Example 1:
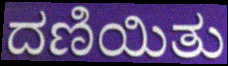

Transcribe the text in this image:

ದಣಿಯಿತು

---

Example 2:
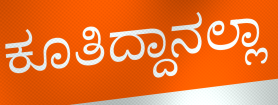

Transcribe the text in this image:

ಕೂತಿದ್ದಾನಲ್ಲಾ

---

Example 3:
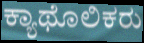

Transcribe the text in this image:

ಕ್ಯಾಥೊಲಿಕರು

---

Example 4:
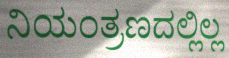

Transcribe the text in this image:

ನಿಯಂತ್ರಣದಲ್ಲಿಲ್ಲ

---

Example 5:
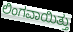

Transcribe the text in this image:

ಲಿಂಗವಾಯಿತ್ತು